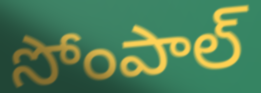
సోంపాల్